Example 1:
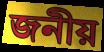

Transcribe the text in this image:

জনীয়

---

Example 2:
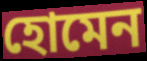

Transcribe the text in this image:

হোমেন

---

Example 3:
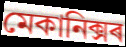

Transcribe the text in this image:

মেকানিক্সৰ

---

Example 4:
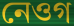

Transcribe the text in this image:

নেওগ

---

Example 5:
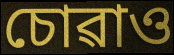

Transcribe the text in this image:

চোৱাও